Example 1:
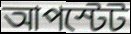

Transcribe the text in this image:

আপস্টেট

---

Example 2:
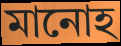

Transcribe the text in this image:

মানোহ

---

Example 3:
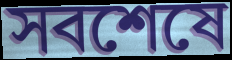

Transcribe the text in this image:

সবশেষে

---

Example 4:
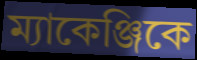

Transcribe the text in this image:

ম্যাকেঞ্জিকে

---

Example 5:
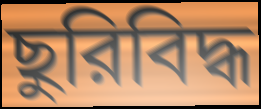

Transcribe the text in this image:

ছুরিবিদ্ধ